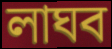
লাঘব